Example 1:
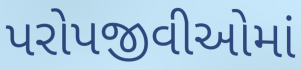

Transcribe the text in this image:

પરોપજીવીઓમાં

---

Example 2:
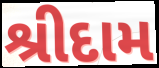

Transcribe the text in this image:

શ્રીદામ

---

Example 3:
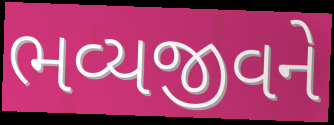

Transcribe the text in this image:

ભવ્યજીવને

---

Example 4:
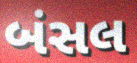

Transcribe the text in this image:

બંસલ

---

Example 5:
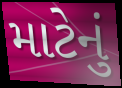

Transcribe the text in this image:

માટેનું